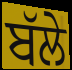
ਬੱਲੇ